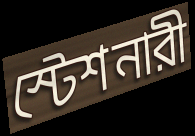
স্টেশনারী